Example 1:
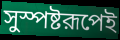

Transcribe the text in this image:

সুস্পষ্টরূপেই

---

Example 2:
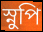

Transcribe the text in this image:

স্নুপি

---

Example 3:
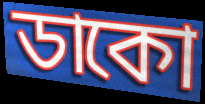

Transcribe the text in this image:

ডাকো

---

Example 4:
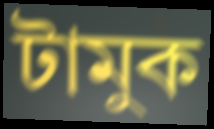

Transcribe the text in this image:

টামুক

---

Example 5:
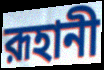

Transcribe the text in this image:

রূহানী